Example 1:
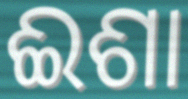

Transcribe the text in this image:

ଈଶା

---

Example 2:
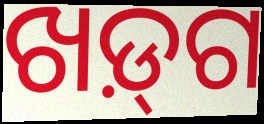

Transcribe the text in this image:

ଖଡ଼୍‌ଗ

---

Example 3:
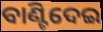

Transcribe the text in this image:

ବାଣ୍ଟିଦେଇ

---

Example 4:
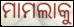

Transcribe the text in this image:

ମାମଲାକୁ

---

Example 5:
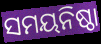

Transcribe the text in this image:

ସମୟନିଷ୍ଠା